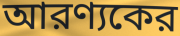
আরণ্যকের